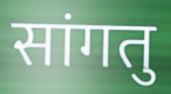
सांगतु